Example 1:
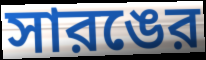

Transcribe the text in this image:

সারঙের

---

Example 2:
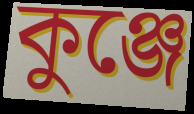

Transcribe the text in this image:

কুঞ্জে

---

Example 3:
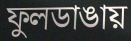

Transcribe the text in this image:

ফুলডাঙায়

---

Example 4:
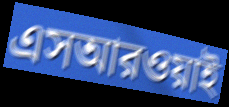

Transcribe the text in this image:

এসআরওয়াই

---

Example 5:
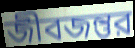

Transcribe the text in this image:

জীবজন্তুর